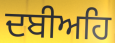
ਦਬੀਅਹਿ